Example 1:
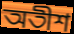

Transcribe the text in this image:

অতীশ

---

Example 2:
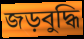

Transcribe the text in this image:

জড়বুদ্ধি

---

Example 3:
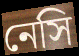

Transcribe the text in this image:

নেসি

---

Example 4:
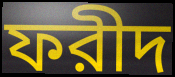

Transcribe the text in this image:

ফরীদ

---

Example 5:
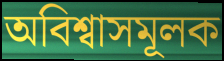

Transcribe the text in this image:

অবিশ্বাসমূলক